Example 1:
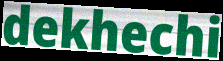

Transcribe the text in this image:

dekhechi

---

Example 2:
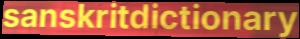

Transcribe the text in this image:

sanskritdictionary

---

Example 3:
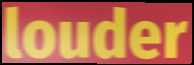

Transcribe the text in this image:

louder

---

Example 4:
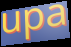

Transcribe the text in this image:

upa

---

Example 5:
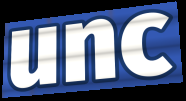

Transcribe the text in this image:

unc